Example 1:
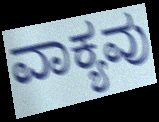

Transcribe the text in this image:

ವಾಕ್ಯವು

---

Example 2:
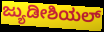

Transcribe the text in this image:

ಜ್ಯುಡೀಶಿಯಲ್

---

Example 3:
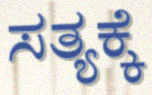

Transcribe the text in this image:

ಸತ್ಯಕ್ಕೆ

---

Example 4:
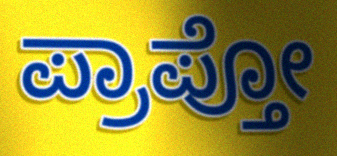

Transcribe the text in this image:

ಪ್ರಾಪ್ತೋ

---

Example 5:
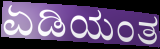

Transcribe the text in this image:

ಏಡಿಯಂತ